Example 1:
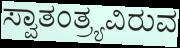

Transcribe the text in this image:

ಸ್ವಾತಂತ್ರ್ಯವಿರುವ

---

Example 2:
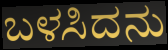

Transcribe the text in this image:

ಬಳಸಿದನು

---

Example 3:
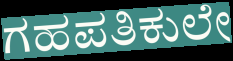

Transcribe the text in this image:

ಗಹಪತಿಕುಲೇ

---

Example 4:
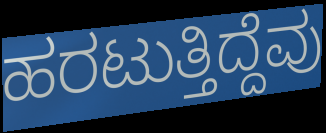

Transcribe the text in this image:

ಹರಟುತ್ತಿದ್ದೆವು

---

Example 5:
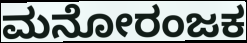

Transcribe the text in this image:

ಮನೋರಂಜಕ